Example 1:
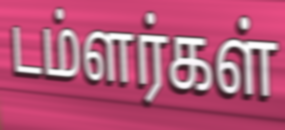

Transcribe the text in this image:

டம்ளர்கள்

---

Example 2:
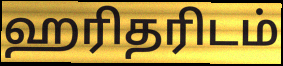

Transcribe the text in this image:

ஹரிதரிடம்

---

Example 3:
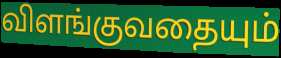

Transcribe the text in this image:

விளங்குவதையும்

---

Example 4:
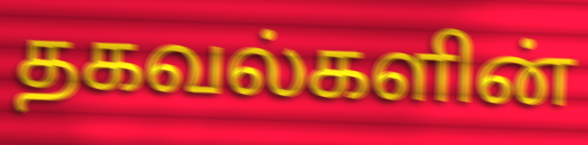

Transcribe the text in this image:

தகவல்களின்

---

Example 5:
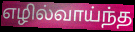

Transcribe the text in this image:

எழில்வாய்ந்த